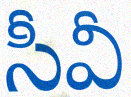
సీవీ